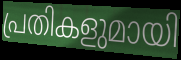
പ്രതികളുമായി